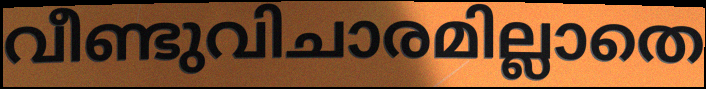
വീണ്ടുവിചാരമില്ലാതെ